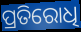
ପ୍ରତିରୋଧି